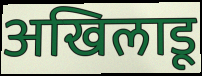
अखिलाडू